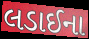
લડાઈના